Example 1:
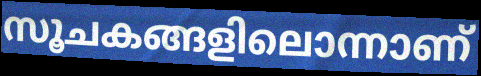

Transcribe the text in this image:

സൂചകങ്ങളിലൊന്നാണ്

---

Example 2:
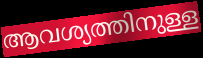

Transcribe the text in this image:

ആവശ്യത്തിനുള്ള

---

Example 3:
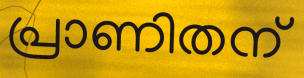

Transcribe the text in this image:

പ്രാണിതന്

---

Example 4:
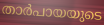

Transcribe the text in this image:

താർപായയുടെ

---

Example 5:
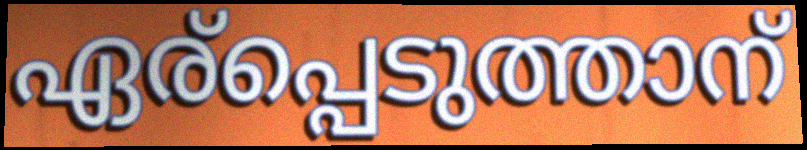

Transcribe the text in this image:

ഏര്പ്പെടുത്താന്